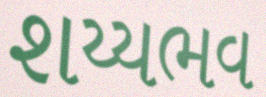
શય્યભવ